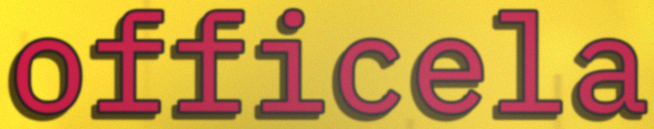
officela